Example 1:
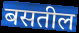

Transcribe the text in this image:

बसतील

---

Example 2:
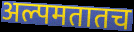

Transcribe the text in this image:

अल्पमतातच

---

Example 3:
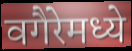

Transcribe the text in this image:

वगैरेमध्ये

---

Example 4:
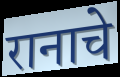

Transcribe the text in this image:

रानाचे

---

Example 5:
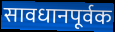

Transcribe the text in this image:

सावधानपूर्वक